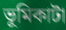
ভূমিকাটা